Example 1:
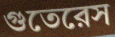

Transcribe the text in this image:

গুতেরেস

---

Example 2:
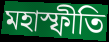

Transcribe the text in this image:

মহাস্ফীতি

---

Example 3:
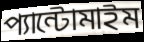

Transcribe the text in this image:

প্যান্টোমাইম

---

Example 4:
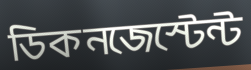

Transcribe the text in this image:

ডিকনজেস্টেন্ট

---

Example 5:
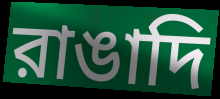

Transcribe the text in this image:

রাঙাদি